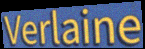
Verlaine